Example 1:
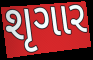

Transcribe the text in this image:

શૃગાર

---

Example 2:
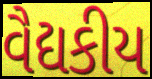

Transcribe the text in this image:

વૈદ્યકીય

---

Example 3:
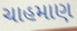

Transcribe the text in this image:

ચાહમાણ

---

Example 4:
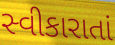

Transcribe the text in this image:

સ્વીકારાતાં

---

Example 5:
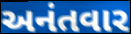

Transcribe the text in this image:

અનંતવાર